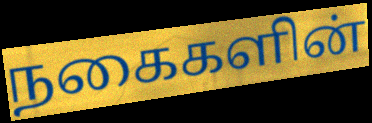
நகைகளின்